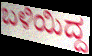
ಬಳಿಯಿದ್ದ